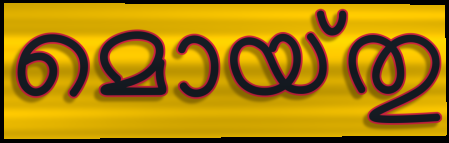
മൊയ്‌തു